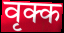
वृक्क